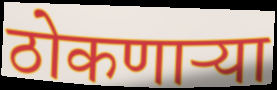
ठोकणाऱ्या